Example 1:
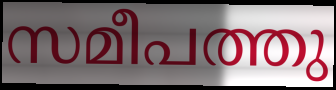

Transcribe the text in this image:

സമീപത്തു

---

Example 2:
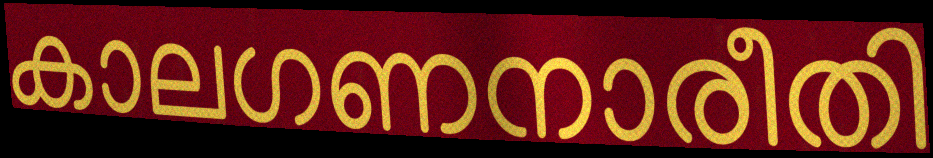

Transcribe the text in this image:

കാലഗണനാരീതി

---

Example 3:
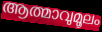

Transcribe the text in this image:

ആത്മാവുമൂലം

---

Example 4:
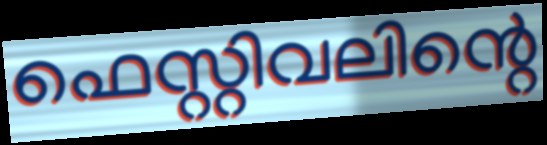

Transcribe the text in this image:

ഫെസ്റ്റിവലിന്റെ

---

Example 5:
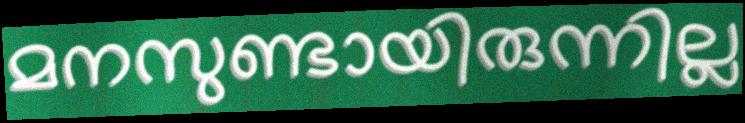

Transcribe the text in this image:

മനസുണ്ടായിരുന്നില്ല